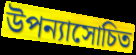
উপন্যাসোচিত